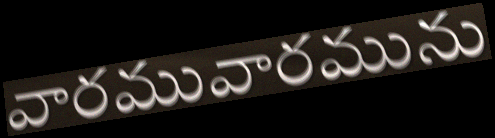
వారమువారమును